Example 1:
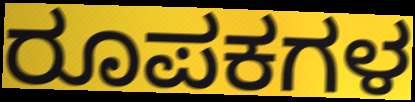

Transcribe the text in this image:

ರೂಪಕಗಳ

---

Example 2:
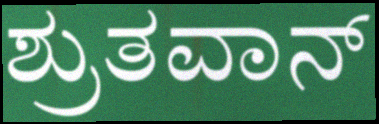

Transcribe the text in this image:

ಶ್ರುತವಾನ್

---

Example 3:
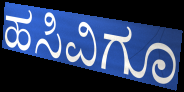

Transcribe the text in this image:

ಹಸಿವಿಗೂ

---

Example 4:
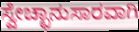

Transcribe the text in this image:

ಸ್ವೇಚ್ಛಾನುಸಾರವಾಗಿ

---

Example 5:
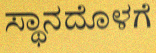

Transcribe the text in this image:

ಸ್ಥಾನದೊಳಗೆ